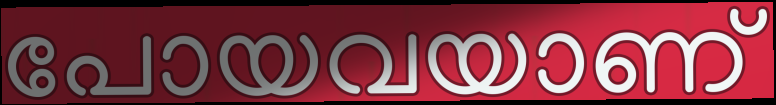
പോയവയാണ്